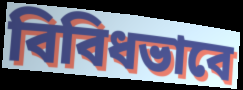
বিবিধভাবে